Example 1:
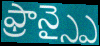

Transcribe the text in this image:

ఫ్రాన్స్పై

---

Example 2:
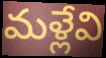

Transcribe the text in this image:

మళ్లేవి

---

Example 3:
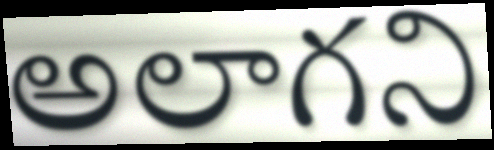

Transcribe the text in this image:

అలాగని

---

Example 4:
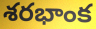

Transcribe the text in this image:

శరభాంక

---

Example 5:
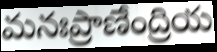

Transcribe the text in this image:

మనఃప్రాణేంద్రియ